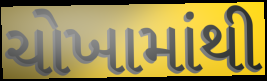
ચોખામાંથી